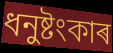
ধনুষ্টংকাৰ